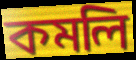
কমলি